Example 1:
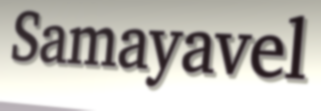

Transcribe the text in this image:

Samayavel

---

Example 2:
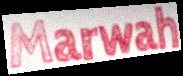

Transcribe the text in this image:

Marwah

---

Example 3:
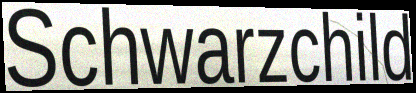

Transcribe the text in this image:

Schwarzchild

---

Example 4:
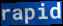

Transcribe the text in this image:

rapid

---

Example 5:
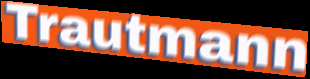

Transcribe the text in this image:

Trautmann